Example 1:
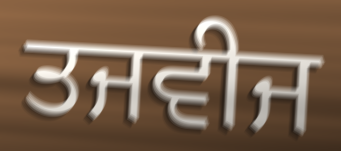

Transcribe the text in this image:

ਤਜਵੀਜ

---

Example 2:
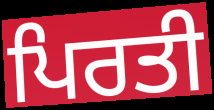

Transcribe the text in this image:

ਪਿਰਤੀ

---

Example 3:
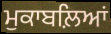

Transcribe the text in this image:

ਮੁਕਾਬਲ਼ਿਆਂ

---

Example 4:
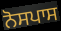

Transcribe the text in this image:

ਨੋਸਪਾਸ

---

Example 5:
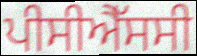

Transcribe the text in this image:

ਪੀਸੀਐੱਸਸੀ